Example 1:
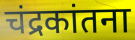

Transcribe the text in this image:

चंद्रकांतना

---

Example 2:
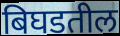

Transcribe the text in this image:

बिघडतील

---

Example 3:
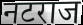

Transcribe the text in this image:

नटराज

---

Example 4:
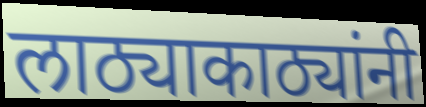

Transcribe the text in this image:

लाठ्याकाठ्यांनी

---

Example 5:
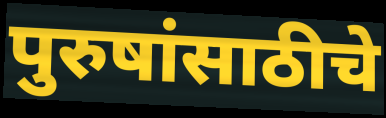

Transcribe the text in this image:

पुरुषांसाठीचे